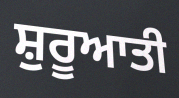
ਸ਼ੁਰੂਆਤੀ